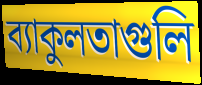
ব্যাকুলতাগুলি